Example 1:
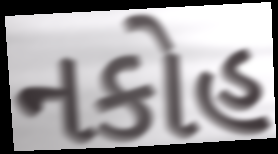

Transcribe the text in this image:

નકોહ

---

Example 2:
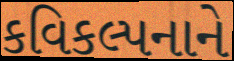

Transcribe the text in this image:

કવિકલ્પનાને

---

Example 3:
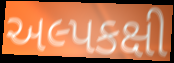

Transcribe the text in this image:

અલ્પકક્ષી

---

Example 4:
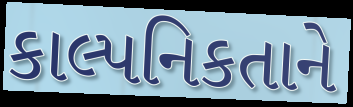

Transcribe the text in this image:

કાલ્પનિકતાને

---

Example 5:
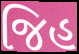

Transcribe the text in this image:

જિહ